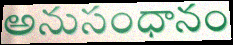
అనుసంధానం